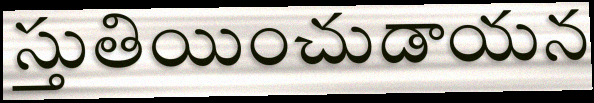
స్తుతియించుడాయన